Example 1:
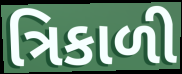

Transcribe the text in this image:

ત્રિકાળી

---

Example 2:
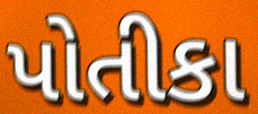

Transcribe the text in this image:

પોતીકા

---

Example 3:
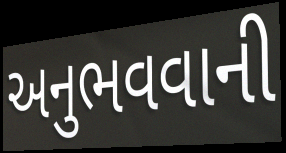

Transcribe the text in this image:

અનુભવવાની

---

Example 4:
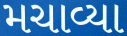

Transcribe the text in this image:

મચાવ્યા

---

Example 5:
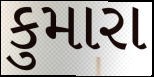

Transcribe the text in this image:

કુમારા